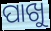
ପାଖୁ